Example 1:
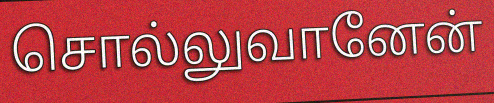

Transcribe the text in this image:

சொல்லுவானேன்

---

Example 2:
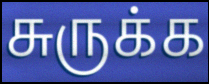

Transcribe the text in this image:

சுருக்க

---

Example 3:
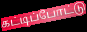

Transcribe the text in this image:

கட்டிப்போட்டு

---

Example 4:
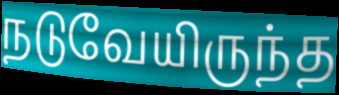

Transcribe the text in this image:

நடுவேயிருந்த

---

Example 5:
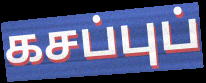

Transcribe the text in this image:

கசப்புப்